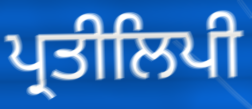
ਪ੍ਰਤੀਲਿਪੀ